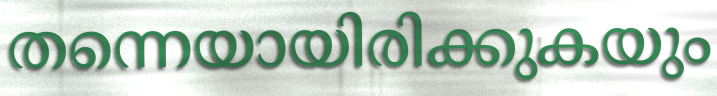
തന്നെയായിരിക്കുകയും